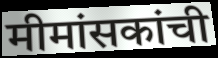
मीमांसकांची